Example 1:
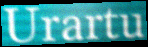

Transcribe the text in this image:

Urartu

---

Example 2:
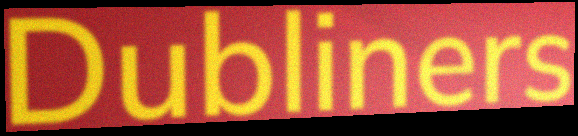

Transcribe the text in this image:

Dubliners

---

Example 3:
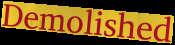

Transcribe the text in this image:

Demolished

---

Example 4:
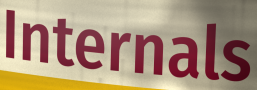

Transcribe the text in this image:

Internals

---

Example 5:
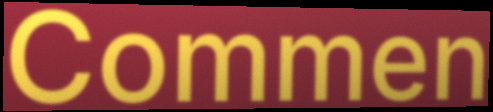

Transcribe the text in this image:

Commen